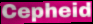
Cepheid